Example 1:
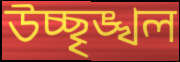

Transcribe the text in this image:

উচ্ছৃঙ্খল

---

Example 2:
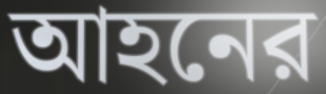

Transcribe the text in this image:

আহনের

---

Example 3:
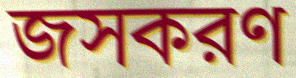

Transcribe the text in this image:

জসকরণ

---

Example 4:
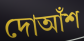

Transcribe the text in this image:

দোআঁশ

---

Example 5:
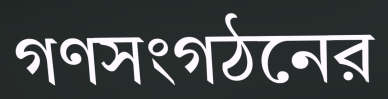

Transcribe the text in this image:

গণসংগঠনের